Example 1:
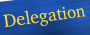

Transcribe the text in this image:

Delegation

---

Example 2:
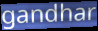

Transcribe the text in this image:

gandhar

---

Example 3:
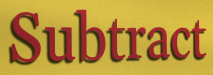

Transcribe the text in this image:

Subtract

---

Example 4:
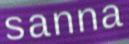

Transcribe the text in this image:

sanna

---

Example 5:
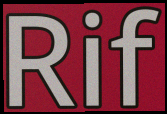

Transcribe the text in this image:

Rif